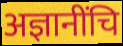
अज्ञानींचि